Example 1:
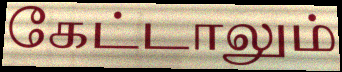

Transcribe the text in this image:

கேட்டாலும்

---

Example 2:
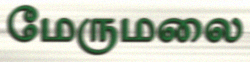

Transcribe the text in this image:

மேருமலை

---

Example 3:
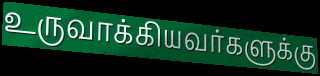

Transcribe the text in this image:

உருவாக்கியவர்களுக்கு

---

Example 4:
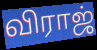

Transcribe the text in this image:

விராஜ்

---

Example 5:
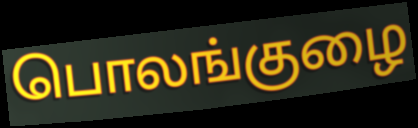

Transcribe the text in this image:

பொலங்குழை